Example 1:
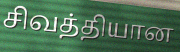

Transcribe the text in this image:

சிவத்தியான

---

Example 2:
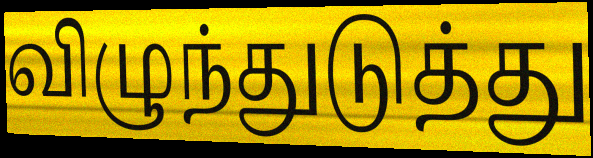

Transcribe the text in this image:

விழுந்துடுத்து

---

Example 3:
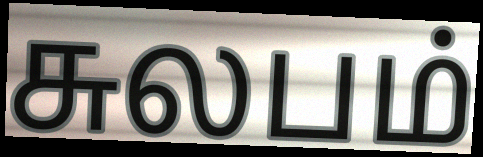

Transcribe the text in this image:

சுலபம்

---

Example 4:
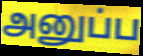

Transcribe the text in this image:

அனுப்ப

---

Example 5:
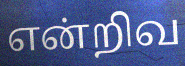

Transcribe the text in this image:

என்றிவ